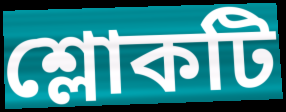
শ্লোকটি